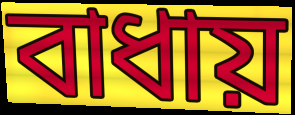
বাধায়